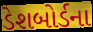
ડેશબોર્ડના